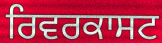
ਰਿਵਰਕਾਸਟ